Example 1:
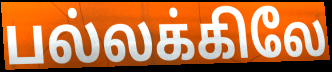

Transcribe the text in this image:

பல்லக்கிலே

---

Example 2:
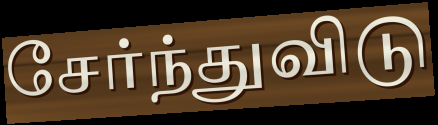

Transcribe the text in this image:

சேர்ந்துவிடு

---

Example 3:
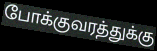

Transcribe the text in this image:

போக்குவரத்துக்கு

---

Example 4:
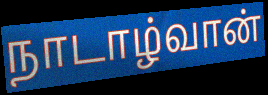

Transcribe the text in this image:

நாடாழ்வான்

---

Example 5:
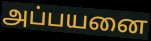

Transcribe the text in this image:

அப்பயனை